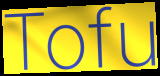
Tofu